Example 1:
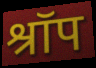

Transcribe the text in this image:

श्रॉप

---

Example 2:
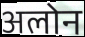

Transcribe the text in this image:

अलोन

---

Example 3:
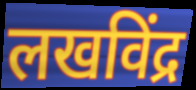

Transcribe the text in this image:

लखविंद्र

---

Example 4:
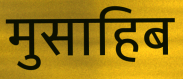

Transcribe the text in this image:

मुसाहिब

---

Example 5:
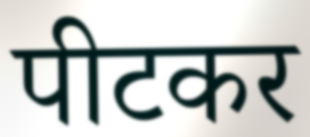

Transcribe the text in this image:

पीटकर